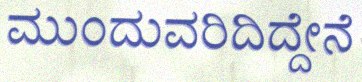
ಮುಂದುವರಿದಿದ್ದೇನೆ